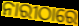
ନାରୀଠାରେ